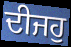
ਦੀਜਹੁ